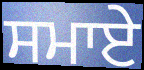
ਸਮਾਏ